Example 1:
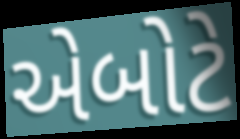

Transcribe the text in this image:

એબોટે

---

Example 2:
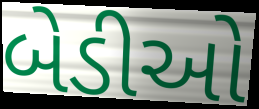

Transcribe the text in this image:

બેડીઓ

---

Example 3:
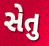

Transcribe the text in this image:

સેતુ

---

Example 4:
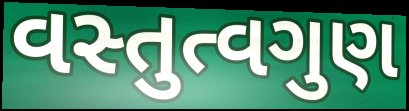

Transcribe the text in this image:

વસ્તુત્વગુણ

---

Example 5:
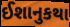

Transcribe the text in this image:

ઈશાનુકથા